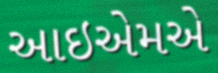
આઇએમએ